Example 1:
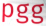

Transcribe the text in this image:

pgg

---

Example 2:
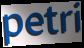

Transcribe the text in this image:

petri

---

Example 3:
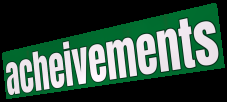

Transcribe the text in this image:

acheivements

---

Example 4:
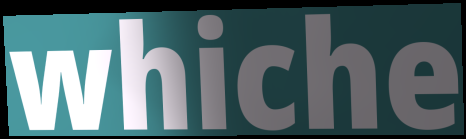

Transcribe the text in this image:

whiche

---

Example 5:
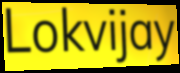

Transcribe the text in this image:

Lokvijay